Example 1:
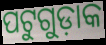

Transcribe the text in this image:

ପଟୁଗୁଡ଼ାକ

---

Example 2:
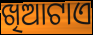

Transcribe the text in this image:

ଖିଆଟାଏ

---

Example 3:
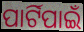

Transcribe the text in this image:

ପାର୍ଟିପାଇଁ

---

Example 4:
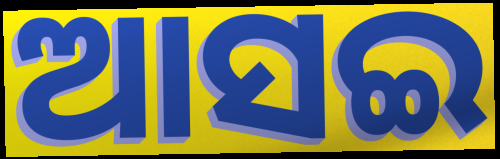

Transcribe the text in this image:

ଆସଇ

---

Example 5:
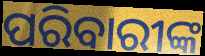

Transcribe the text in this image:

ପରିବାରୀଙ୍କ